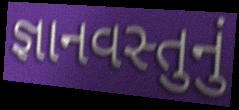
જ્ઞાનવસ્તુનું